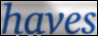
haves